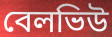
বেলভিউ